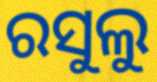
ରସୁଲୁ